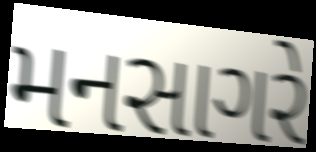
મનસાગરે